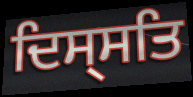
ਦਿਸ੍ਸਤਿ